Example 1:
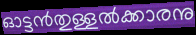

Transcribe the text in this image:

ഓട്ടൻതുള്ളൽക്കാരനു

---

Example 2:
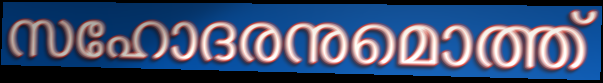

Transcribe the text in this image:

സഹോദരനുമൊത്ത്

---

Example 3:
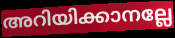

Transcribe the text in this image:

അറിയിക്കാനല്ലേ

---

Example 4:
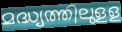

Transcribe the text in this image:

മദ്ധ്യത്തിലുളള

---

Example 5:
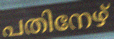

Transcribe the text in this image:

പതിനേഴ്